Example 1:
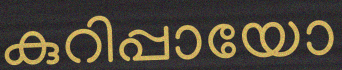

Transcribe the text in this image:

കുറിപ്പായോ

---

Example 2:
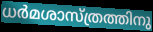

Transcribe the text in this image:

ധർമശാസ്ത്രത്തിനു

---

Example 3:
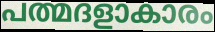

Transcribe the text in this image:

പത്മദളാകാരം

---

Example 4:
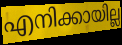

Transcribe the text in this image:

എനിക്കായില്ല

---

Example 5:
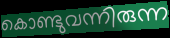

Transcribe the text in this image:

കൊണ്ടുവന്നിരുന്ന